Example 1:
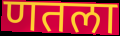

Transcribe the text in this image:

णतला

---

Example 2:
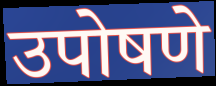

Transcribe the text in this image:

उपोषणे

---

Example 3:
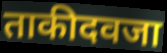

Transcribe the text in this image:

ताकीदवजा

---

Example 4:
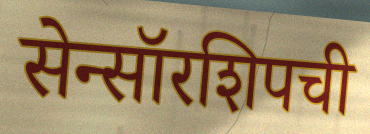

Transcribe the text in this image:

सेन्सॉरशिपची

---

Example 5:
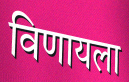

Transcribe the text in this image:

विणायला